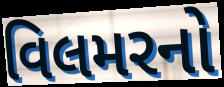
વિલમરનો